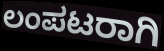
ಲಂಪಟರಾಗಿ